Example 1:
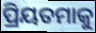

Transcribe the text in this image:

ପ୍ରିୟତମାକୁ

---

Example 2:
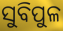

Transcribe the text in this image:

ସୁବିପୁଳ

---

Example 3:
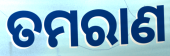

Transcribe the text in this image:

ତମରାଣ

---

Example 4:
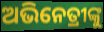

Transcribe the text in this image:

ଅଭିନେତ୍ରୀଙ୍କୁ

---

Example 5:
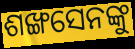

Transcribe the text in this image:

ଶଙ୍ଖସେନଙ୍କୁ